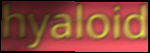
hyaloid